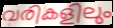
വരികളിലും